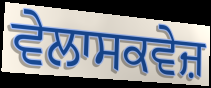
ਵੇਲਾਸਕਵੇਜ਼